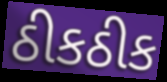
ઠીકઠીક